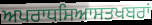
ਅਪਰਾਧਸਿਆਸਤਖਬਰਾਂ